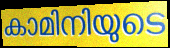
കാമിനിയുടെ